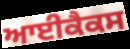
ਆਈਕੈਕਸ